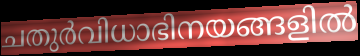
ചതുർവിധാഭിനയങ്ങളിൽ